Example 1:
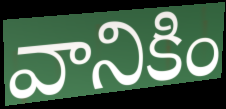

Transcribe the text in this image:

వానికిం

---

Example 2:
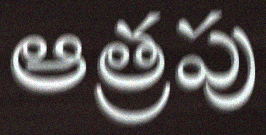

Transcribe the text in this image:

ఆత్రపు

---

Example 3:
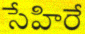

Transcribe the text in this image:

సేహిరే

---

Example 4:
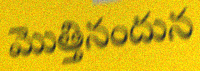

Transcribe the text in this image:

మొత్తినందున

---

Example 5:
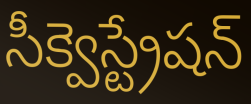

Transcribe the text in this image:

సీక్వెస్ట్రేషన్